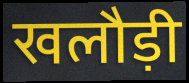
खलौड़ी